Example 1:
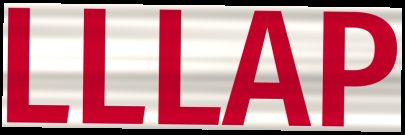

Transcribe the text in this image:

LLLAP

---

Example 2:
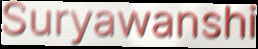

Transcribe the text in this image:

Suryawanshi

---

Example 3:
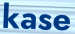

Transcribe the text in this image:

kase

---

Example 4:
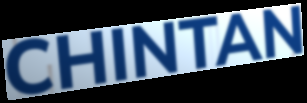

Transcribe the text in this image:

CHINTAN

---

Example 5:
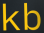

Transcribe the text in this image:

kb